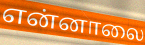
என்னாலை